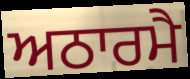
ਅਠਾਰਮੈ